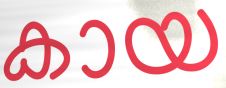
കായ